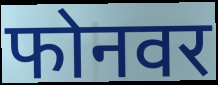
फोनवर